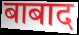
बाबाद